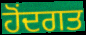
ਹੋਂਦਗਤ